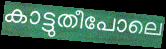
കാട്ടുതീപോലെ